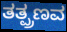
ತತ್ಪ್ರಣವ